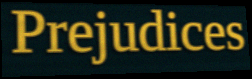
Prejudices